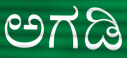
ಅಗಡಿ